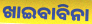
ଖାଇବାବିନା